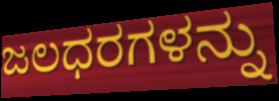
ಜಲಧರಗಳನ್ನು